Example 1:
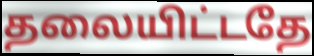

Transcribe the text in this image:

தலையிட்டதே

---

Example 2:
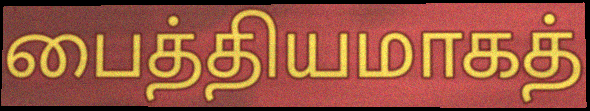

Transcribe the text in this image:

பைத்தியமாகத்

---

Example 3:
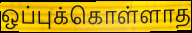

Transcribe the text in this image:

ஒப்புக்கொள்ளாத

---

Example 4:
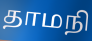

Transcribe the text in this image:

தாமநி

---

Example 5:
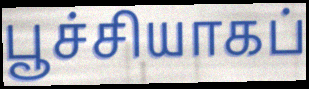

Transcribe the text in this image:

பூச்சியாகப்